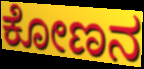
ಕೋಣನ